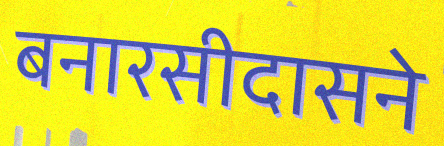
बनारसीदासने